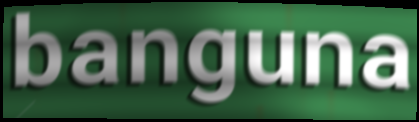
banguna